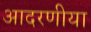
आदरणीया